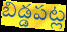
బిడ్డపట్ల